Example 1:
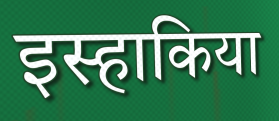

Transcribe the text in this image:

इस्हाकिया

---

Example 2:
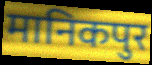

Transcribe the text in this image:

मानिकपुर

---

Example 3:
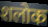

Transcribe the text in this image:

शलोक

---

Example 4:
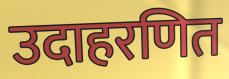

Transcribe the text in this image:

उदाहरणित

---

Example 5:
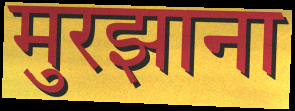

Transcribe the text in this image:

मुरझाना